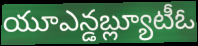
యూఎన్డబ్ల్యూటీఓ